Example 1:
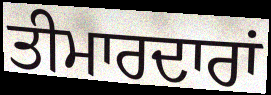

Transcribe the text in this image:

ਤੀਮਾਰਦਾਰਾਂ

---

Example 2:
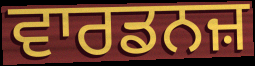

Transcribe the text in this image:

ਵਾਰਡਨਜ਼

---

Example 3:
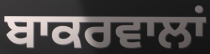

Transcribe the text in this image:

ਬਾਕਰਵਾਲਾਂ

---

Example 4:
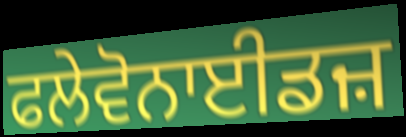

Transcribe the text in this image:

ਫਲੇਵੋਨਾਈਡਜ਼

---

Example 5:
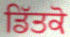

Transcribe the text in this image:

ਡਿੱਤਕੋ